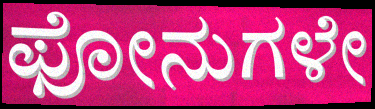
ಫೋನುಗಳೇ